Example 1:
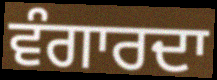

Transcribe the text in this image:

ਵੰਗਾਰਦਾ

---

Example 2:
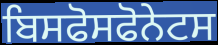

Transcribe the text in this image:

ਬਿਸਫੋਸਫੋਨੇਟਸ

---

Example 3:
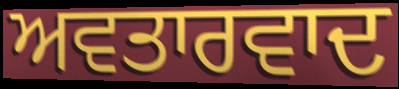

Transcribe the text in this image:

ਅਵਤਾਰਵਾਦ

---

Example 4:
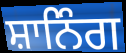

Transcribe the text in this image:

ਸ਼ਾਨਿੰਗ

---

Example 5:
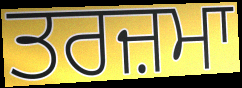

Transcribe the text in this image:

ਤਰਜ਼ਮਾ